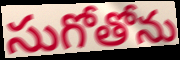
సుగోతోను